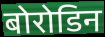
बोरोडिन